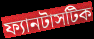
ফ্যানটাসটিক